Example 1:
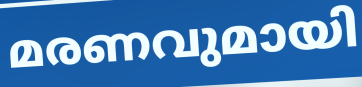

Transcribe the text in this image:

മരണവുമായി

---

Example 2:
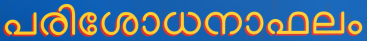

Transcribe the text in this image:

പരിശോധനാഫലം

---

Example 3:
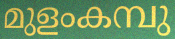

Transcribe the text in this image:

മുളംകമ്പു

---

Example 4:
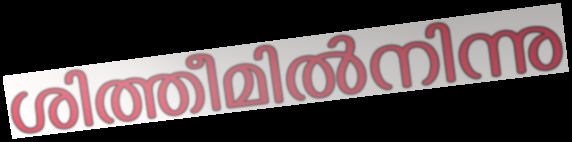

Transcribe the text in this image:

ശിത്തീമിൽനിന്നു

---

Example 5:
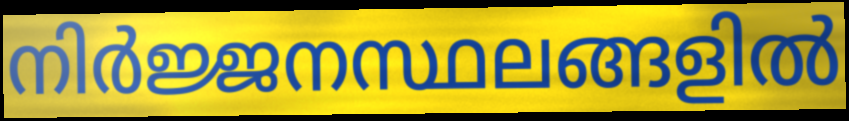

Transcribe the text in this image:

നിർജ്ജനസ്ഥലങ്ങളിൽ